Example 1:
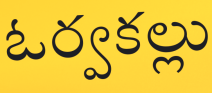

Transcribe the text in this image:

ఓర్వకల్లు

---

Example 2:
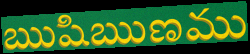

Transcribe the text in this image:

ఋషిఋణము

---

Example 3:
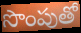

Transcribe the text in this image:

సొంపుతో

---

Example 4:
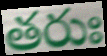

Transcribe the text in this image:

తరుః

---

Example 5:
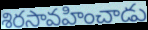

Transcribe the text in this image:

శిరసావహించాడు